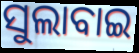
ସୁଲାବାଇ